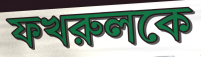
ফখরুলকে